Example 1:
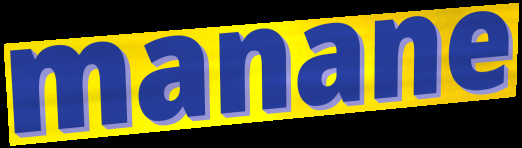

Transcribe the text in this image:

manane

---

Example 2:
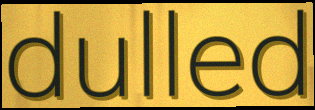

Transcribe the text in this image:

dulled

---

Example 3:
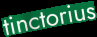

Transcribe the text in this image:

tinctorius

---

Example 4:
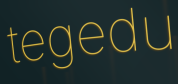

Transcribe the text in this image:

tegedu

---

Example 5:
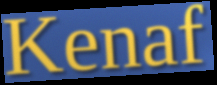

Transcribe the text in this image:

Kenaf